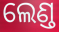
ଲେଣ୍ଡ